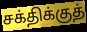
சக்திக்குத்